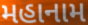
મહાનામ